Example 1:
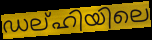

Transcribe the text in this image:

ഡല്ഹിയിലെ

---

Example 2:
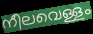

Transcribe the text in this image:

നീലവെള്ളം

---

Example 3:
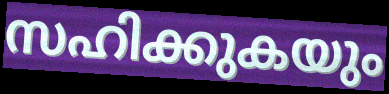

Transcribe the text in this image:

സഹിക്കുകയും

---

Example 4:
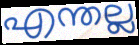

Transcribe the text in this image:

എന്തല്ല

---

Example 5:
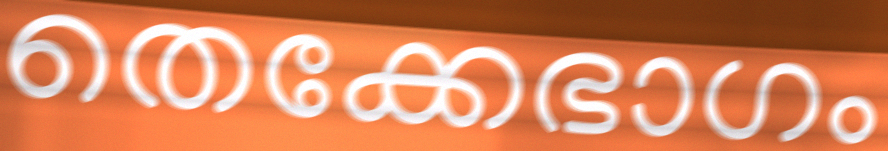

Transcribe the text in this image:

തെക്കേഭാഗം